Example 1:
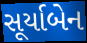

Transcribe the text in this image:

સૂર્યાબેન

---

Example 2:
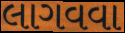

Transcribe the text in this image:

લાગવવા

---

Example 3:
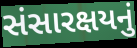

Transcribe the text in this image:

સંસારક્ષયનું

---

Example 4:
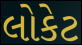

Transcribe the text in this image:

લોકેટ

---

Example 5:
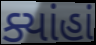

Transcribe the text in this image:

ક્યાંહાં